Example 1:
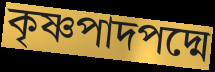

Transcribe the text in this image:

কৃষ্ণপাদপদ্মে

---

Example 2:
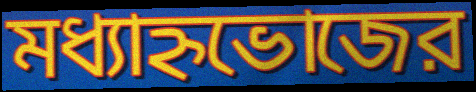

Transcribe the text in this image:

মধ্যাহ্নভোজের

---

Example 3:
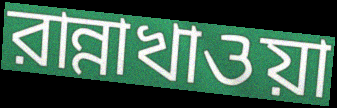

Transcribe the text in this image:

রান্নাখাওয়া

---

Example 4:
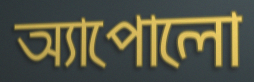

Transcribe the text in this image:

অ্যাপোলো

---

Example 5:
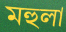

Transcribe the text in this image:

মহুলা